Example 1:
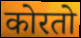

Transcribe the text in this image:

कोरतो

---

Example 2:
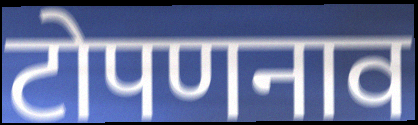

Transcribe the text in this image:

टोपणनाव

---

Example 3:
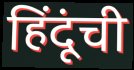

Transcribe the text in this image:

हिंदूंची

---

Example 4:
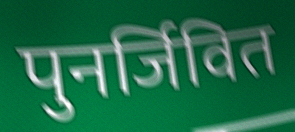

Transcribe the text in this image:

पुनर्जिवित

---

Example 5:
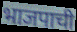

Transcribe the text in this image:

भाजपाची